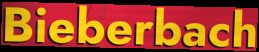
Bieberbach